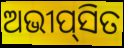
ଅଭୀପ୍‌ସିତ